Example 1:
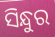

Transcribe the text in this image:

ସିନ୍ଧୁର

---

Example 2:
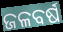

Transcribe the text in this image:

ଜଳବର୍ଷ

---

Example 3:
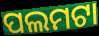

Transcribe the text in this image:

ପଲମଟା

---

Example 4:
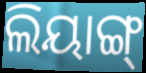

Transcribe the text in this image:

ଲିୟାଙ୍ଗ୍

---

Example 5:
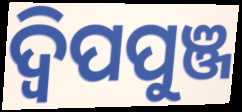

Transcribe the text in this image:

ଦ୍ଵିପପୁଞ୍ଜ